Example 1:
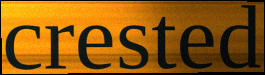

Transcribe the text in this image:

crested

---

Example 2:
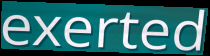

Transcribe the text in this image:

exerted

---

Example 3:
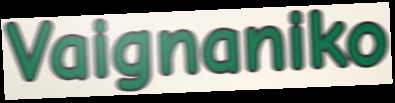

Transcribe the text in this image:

Vaignaniko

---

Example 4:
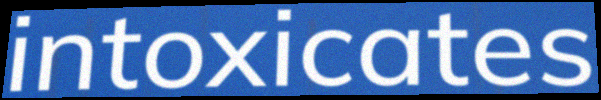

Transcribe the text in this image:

intoxicates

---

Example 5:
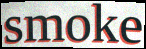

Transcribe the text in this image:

smoke